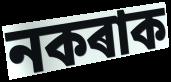
নকৰাক